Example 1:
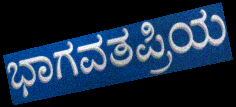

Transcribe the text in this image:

ಭಾಗವತಪ್ರಿಯ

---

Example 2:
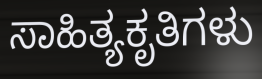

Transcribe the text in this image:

ಸಾಹಿತ್ಯಕೃತಿಗಳು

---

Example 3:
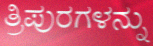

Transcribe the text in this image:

ತ್ರಿಪುರಗಳನ್ನು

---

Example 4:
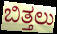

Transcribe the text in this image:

ಬಿತ್ತಲು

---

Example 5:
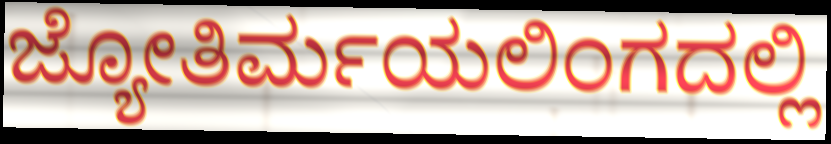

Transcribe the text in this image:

ಜ್ಯೋತಿರ್ಮಯಲಿಂಗದಲ್ಲಿ